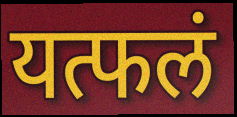
यत्फलं